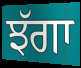
ਝੱਗਾ